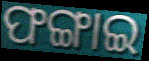
ଫଙ୍ଗାଇ